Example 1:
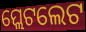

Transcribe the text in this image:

ପ୍ଲେଟଲେଟ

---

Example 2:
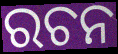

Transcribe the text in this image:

ରଚନ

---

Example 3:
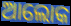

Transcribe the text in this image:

ଆଲୋକ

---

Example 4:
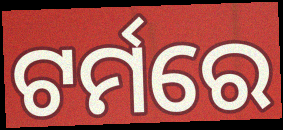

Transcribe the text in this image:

ଟର୍ମରେ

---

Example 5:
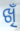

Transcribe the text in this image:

ଖିଁ